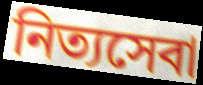
নিত্যসেবা